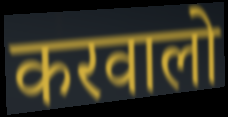
करवालो